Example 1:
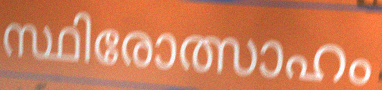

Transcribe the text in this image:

സ്ഥിരോത്സാഹം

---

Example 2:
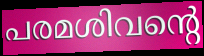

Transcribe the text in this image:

പരമശിവന്റെ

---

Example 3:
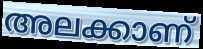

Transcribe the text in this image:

അലക്കാണ്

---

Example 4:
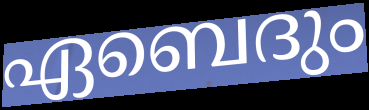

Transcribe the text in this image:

ഏബെദും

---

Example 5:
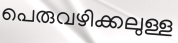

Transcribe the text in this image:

പെരുവഴിക്കലുള്ള